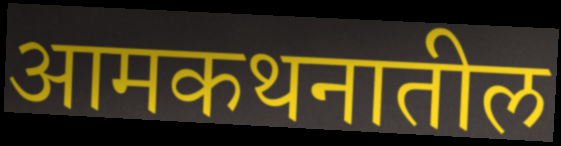
आमकथनातील